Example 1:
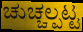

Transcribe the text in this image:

ಚುಚ್ಚಲ್ಪಟ್ಟ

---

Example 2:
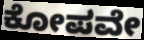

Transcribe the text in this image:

ಕೋಪವೇ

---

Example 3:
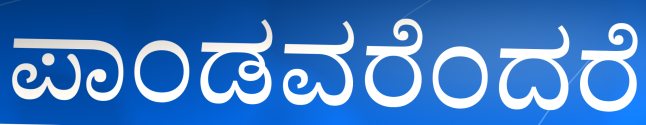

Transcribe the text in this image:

ಪಾಂಡವರೆಂದರೆ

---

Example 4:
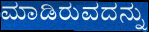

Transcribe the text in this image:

ಮಾಡಿರುವದನ್ನು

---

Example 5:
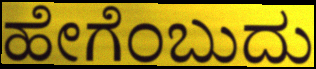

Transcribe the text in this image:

ಹೇಗೆಂಬುದು